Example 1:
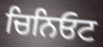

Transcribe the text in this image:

ਚਿਨਿਓਟ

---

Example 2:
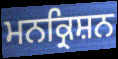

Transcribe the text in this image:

ਮਨਕ੍ਰਿਸ਼ਨ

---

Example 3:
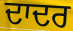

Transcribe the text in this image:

ਦਾਦਰ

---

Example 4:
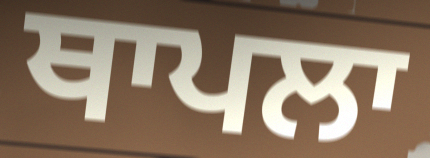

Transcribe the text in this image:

ਥਾਪਲਾ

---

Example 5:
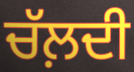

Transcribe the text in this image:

ਚੱਲ਼ਦੀ